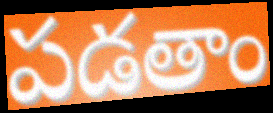
పడతాం